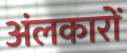
अंलकारों